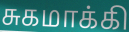
சுகமாக்கி